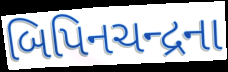
બિપિનચન્દ્રના